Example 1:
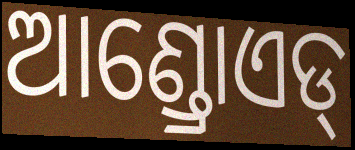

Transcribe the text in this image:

ଆଣ୍ଡ୍ରୋଏଡ୍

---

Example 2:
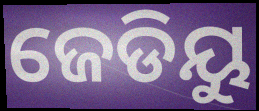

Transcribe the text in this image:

ଜେଡିୟୁ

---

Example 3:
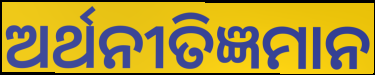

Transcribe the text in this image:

ଅର୍ଥନୀତିଜ୍ଞମାନ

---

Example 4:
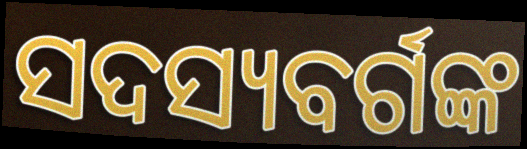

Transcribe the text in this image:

ସଦସ୍ୟବର୍ଗଙ୍କ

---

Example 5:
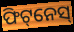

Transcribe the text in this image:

ଫିଟ୍‌ନେସ୍